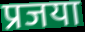
प्रजया